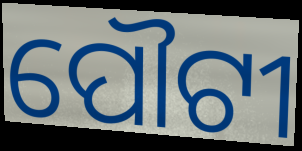
ପୌଟୀ